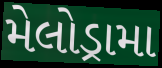
મેલોડ્રામા